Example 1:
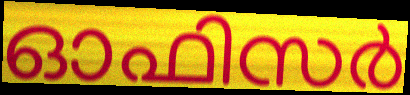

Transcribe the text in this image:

ഓഫിസർ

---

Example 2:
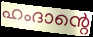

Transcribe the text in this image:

ഹംദാന്റെ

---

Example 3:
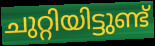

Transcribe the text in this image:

ചുറ്റിയിട്ടുണ്ട്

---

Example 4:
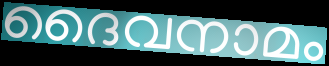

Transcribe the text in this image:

ദൈവനാമം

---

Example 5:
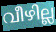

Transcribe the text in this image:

വീഴില്ല